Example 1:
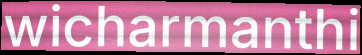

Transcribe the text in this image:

wicharmanthi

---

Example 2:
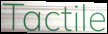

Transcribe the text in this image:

Tactile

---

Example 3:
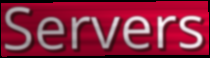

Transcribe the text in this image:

Servers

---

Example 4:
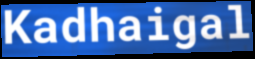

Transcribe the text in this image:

Kadhaigal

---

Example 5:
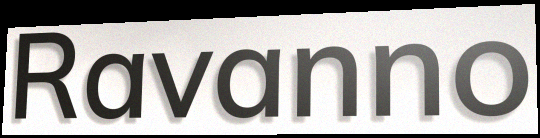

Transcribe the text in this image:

Ravanno